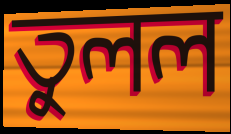
তুলল